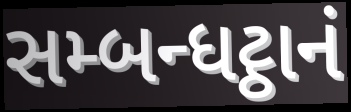
સમ્બન્ધટ્ઠાનં